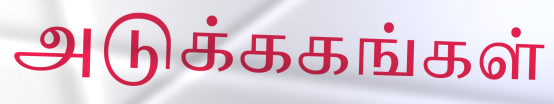
அடுக்ககங்கள்